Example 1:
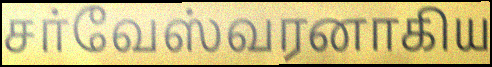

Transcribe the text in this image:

சர்வேஸ்வரனாகிய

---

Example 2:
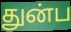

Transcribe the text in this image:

துன்ப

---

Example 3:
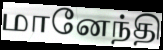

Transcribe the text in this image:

மானேந்தி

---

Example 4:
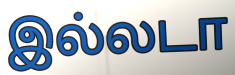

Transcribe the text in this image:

இல்லடா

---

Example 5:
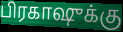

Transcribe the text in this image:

பிரகாஷுக்கு